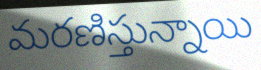
మరణిస్తున్నాయి